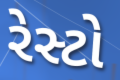
રેસ્ટો